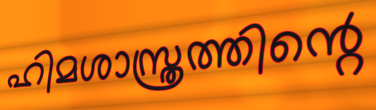
ഹിമശാസ്ത്രത്തിന്റെ